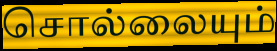
சொல்லையும்